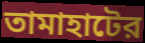
তামাহাটের